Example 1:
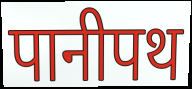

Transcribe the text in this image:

पानीपथ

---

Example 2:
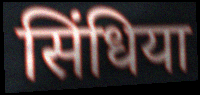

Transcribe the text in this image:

सिंधिया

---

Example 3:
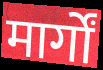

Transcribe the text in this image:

मार्गों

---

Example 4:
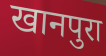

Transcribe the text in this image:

खानपुरा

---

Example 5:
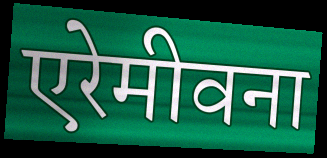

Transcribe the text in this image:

एरेमीवना